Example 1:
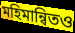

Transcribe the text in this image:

মহিমান্বিতও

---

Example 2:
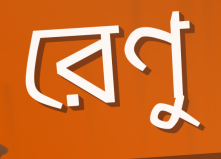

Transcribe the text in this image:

রেণু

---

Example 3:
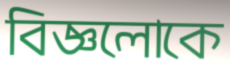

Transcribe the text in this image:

বিজ্ঞলোকে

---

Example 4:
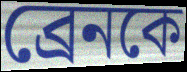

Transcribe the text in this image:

ব্রেনকে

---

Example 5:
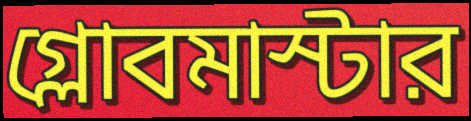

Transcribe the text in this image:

গ্লোবমাস্টার